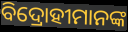
ବିଦ୍ରୋହୀମାନଙ୍କ